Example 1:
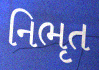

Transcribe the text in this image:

નિભૃત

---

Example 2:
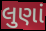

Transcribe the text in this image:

લુણાં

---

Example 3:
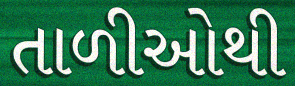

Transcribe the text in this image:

તાળીઓથી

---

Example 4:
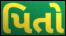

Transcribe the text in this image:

પિતો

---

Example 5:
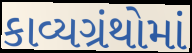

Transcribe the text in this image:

કાવ્યગ્રંથોમાં